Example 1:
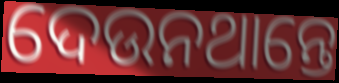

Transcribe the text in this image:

ଦେଉନଥାନ୍ତେ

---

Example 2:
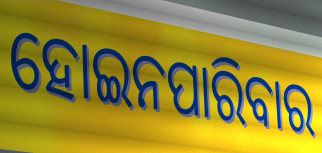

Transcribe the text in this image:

ହୋଇନପାରିବାର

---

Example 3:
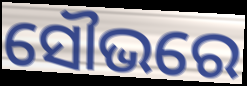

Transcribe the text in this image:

ସୌଭରେ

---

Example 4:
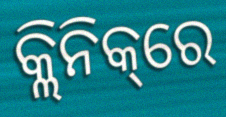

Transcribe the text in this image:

କ୍ଲିନିକ୍‌ରେ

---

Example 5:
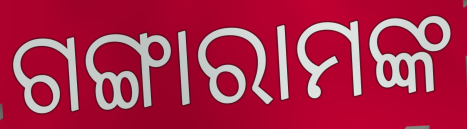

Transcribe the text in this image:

ଗଙ୍ଗାରାମଙ୍କ